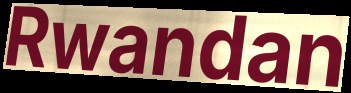
Rwandan